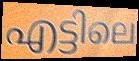
എട്ടിലെ